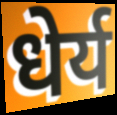
धेर्य